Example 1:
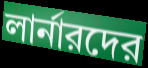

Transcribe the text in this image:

লার্নারদের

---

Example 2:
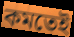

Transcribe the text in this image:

কমতেই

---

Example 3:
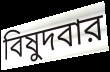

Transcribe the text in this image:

বিষুদবার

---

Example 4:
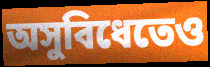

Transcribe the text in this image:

অসুবিধেতেও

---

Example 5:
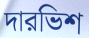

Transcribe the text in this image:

দারভিশ